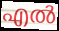
എൽ